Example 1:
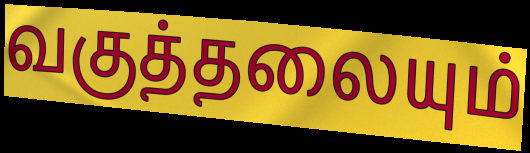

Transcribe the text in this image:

வகுத்தலையும்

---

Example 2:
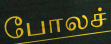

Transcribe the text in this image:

போலச்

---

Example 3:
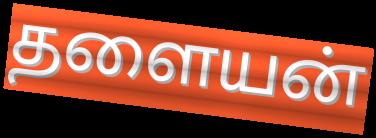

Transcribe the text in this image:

தளையன்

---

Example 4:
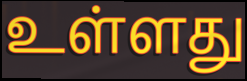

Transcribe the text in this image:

உள்ளது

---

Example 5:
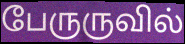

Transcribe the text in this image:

பேருருவில்